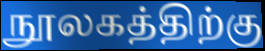
நூலகத்திற்கு